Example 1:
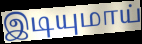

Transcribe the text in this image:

இடியுமாய்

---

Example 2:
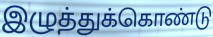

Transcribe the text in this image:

இழுத்துக்கொண்டு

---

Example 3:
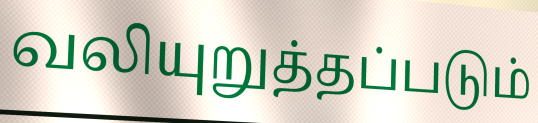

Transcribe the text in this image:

வலியுறுத்தப்படும்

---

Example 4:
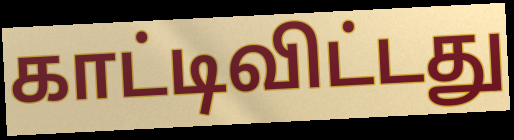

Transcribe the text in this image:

காட்டிவிட்டது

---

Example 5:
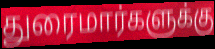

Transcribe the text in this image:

துரைமார்களுக்கு